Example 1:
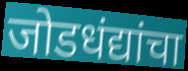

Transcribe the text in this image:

जोडधंद्यांचा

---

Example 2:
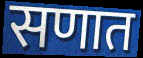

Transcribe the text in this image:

सणात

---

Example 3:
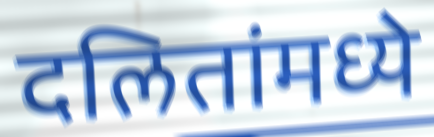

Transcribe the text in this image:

दलितांमध्ये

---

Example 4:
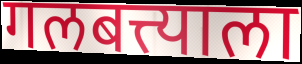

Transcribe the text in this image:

गलबत्त्याला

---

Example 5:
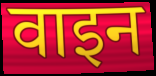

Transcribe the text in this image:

वाइन